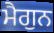
ਮੈਗੁਨ